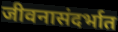
जीवनासंदर्भात